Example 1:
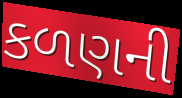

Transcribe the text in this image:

કળણની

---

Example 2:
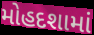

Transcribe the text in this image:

મોહદશામાં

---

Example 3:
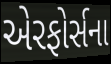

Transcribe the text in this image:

એરફોર્સના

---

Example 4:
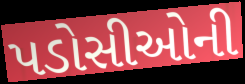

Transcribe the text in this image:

પડોસીઓની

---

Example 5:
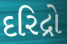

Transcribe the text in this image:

દરિદ્રો